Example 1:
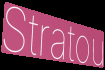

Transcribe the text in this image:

Stratou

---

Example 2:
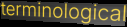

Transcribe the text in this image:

terminological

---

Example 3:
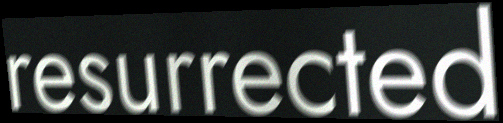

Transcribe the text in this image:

resurrected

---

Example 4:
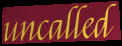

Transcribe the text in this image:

uncalled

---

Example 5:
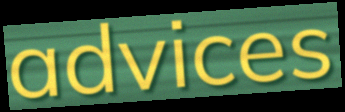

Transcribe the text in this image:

advices